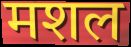
मशल